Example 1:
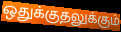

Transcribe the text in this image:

ஒதுக்குதலுக்கும்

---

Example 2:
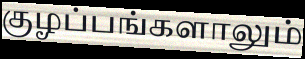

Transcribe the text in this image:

குழப்பங்களாலும்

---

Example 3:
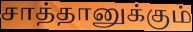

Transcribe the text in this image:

சாத்தானுக்கும்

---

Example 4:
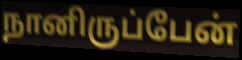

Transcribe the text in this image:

நானிருப்பேன்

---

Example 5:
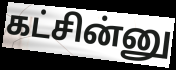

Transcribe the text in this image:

கட்சின்னு